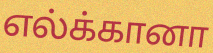
எல்க்கானா